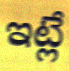
ఇట్లే